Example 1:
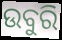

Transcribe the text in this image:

ଉବୁରି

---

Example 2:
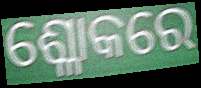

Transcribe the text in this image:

ଶ୍ଳୋକରେ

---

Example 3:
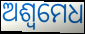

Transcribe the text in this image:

ଅଶ୍ଵମେଧ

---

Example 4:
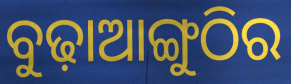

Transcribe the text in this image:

ବୁଢ଼ାଆଙ୍ଗୁଠିର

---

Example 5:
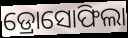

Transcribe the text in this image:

ଡ୍ରୋସୋଫିଲା